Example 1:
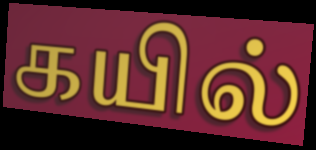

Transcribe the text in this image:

கயில்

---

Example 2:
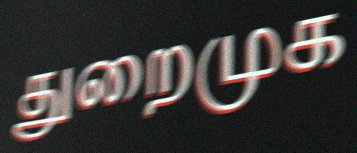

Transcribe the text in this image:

துறைமுக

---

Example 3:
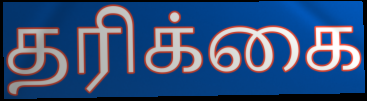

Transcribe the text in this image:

தரிக்கை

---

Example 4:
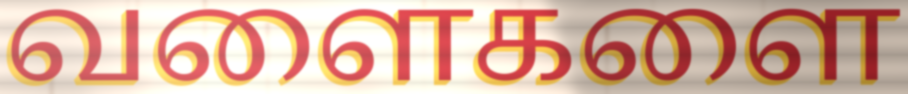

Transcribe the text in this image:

வளைகளை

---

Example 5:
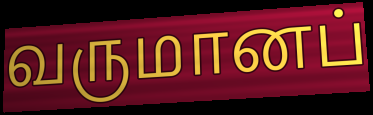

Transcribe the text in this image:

வருமானப்